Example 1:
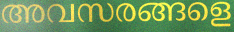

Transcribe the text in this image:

അവസരങ്ങളെ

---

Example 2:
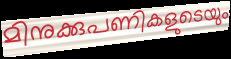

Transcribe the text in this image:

മിനുക്കുപണികളുടെയും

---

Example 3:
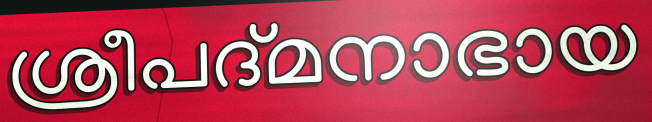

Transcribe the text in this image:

ശ്രീപദ്മനാഭായ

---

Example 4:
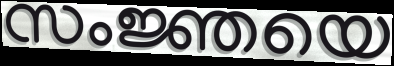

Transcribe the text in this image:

സംജ്ഞയെ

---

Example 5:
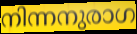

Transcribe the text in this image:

നിന്നനുരാഗ